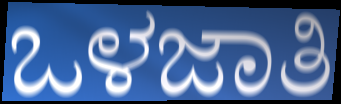
ಒಳಜಾತಿ